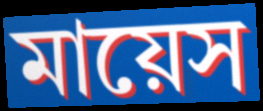
মায়েস